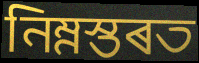
নিম্নস্তৰত